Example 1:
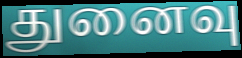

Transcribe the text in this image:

துனைவு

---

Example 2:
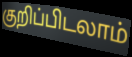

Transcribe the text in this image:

குறிப்பிடலாம்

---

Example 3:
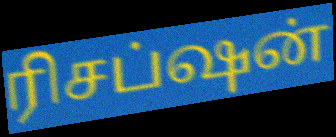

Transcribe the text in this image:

ரிசப்ஷன்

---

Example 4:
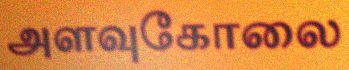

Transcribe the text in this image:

அளவுகோலை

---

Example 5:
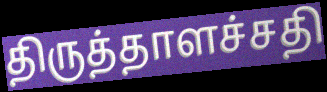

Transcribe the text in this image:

திருத்தாளச்சதி